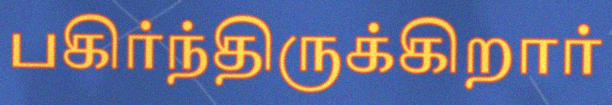
பகிர்ந்திருக்கிறார்